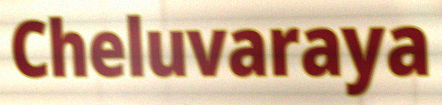
Cheluvaraya